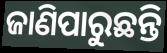
ଜାଣିପାରୁଛନ୍ତି